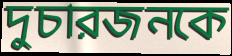
দুচারজনকে